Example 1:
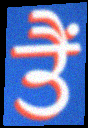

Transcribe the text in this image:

ਤੈਂ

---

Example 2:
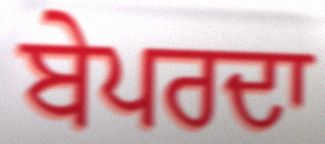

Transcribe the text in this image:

ਬੇਪਰਦਾ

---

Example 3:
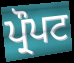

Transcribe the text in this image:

ਪ੍ਰੌਪਟ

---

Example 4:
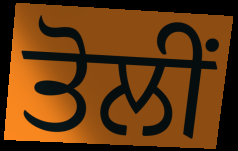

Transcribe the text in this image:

ਤੋਲੀਂ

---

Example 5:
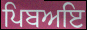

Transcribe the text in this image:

ਪਿਬਅਇ